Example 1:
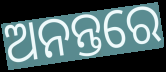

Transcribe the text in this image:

ଅନନ୍ତରେ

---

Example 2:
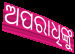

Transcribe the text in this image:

ଅପରାଧିଙ୍କୁ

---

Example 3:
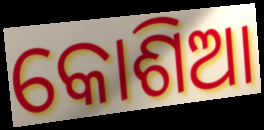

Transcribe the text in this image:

କୋଶିଆ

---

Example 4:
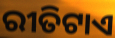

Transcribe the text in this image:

ରୀତିଟାଏ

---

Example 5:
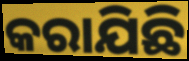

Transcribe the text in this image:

କରାଯିଛି